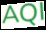
AQI